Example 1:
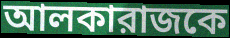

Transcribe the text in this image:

আলকারাজকে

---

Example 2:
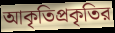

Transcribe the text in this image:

আকৃতিপ্রকৃতির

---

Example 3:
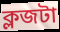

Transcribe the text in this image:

ক্লজটা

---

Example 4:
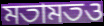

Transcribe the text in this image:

মতামতও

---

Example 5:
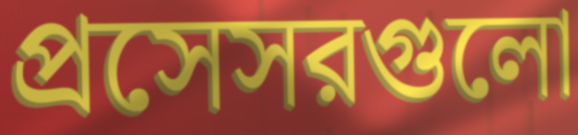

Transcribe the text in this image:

প্রসেসরগুলো